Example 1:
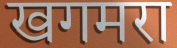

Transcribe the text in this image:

खगमरा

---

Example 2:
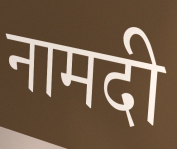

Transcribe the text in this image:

नामदी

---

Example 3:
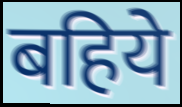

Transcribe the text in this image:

बहिये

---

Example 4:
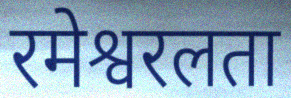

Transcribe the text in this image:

रमेश्वरलता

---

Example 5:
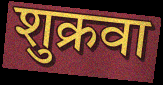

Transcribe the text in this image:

शुक्रवा